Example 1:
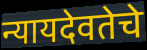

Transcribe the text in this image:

न्यायदेवतेचे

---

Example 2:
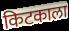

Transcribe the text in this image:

किटकाला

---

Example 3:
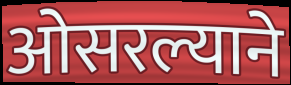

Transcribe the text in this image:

ओसरल्याने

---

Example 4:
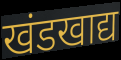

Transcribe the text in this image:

खंडखाद्य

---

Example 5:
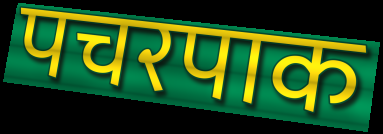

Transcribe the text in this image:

पचरपाक